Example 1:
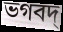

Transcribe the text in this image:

ভগবদ্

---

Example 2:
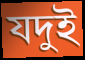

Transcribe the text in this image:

যদুই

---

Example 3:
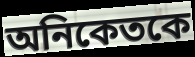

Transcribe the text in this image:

অনিকেতকে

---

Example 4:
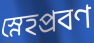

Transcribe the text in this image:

স্নেহপ্রবণ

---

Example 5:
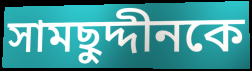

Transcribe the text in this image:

সামছুদ্দীনকে